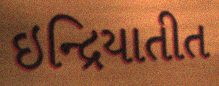
ઇન્દ્રિયાતીત